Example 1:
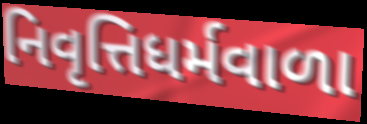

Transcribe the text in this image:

નિવૃત્તિધર્મવાળા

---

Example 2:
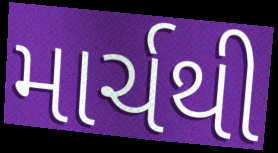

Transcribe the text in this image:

માર્ચથી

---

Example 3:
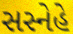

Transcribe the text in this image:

સસ્નેહે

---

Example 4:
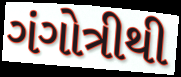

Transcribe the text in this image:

ગંગોત્રીથી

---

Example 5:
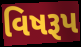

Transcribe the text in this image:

વિષરૂપ